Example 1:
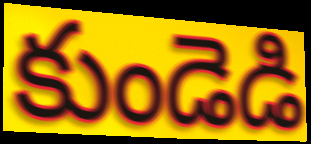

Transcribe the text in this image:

కుండెడి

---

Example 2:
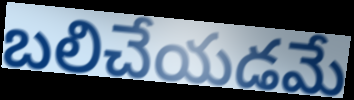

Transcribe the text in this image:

బలిచేయడమే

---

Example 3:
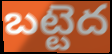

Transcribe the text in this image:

బట్టెద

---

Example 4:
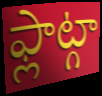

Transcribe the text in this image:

ఫ్లాట్గా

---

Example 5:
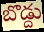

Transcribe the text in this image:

బొడ్దు